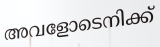
അവളോടെനിക്ക്